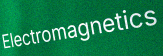
Electromagnetics